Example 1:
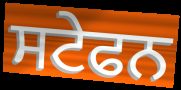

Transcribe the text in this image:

ਸਟੇਫਨ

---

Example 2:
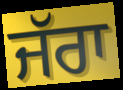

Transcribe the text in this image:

ਜੱਰਾ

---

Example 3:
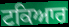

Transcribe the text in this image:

ਟਕਿਆਰ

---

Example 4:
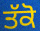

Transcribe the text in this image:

ਤੱਕੋ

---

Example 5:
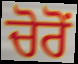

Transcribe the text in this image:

ਚੋਰੋਂ